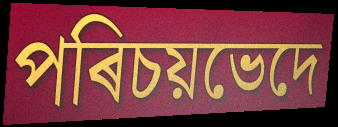
পৰিচয়ভেদে